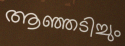
ആഞ്ഞടിച്ചും